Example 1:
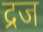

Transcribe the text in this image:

द्रज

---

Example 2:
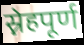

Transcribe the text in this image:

स्नेहपूर्ण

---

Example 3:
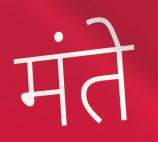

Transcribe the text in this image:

मंते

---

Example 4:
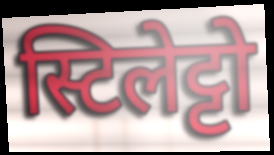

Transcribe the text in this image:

स्टिलेट्टो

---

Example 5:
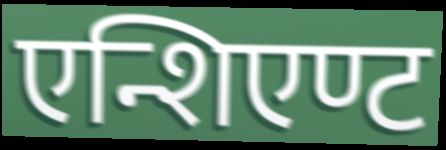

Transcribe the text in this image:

एन्शिएण्ट